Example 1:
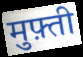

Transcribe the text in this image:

मुफ़्ती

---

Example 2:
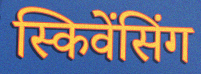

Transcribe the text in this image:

स्किवेंसिंग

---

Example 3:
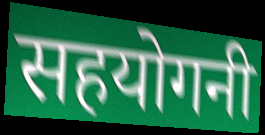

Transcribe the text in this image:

सहयोगनी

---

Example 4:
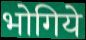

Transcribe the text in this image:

भोगिये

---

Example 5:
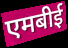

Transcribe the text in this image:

एमबीई